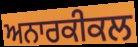
ਅਨਾਰਕੀਕਲ